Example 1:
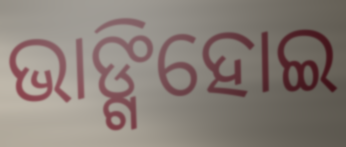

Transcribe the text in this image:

ଭାଙ୍ଗିହୋଇ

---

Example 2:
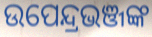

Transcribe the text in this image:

ଉପେନ୍ଦ୍ରଭଞ୍ଜଙ୍କ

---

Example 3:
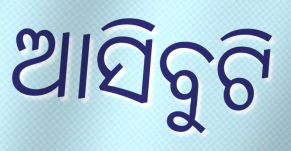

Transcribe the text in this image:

ଆସିବୁଟି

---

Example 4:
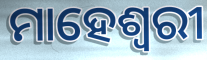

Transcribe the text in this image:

ମାହେଶ୍ଵରୀ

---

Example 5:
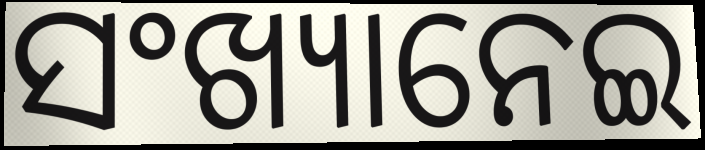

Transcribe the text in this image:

ସଂଖ୍ୟାନେଇ